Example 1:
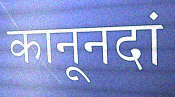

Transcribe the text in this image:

कानूनदां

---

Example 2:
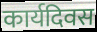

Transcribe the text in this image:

कार्यदिवस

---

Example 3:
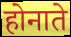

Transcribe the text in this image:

होनाते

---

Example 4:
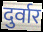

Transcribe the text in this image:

दुर्वार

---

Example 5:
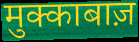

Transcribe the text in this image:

मुक्काबाज़